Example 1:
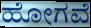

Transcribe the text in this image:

ಹೋಗವೆ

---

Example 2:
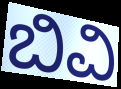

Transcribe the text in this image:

ಬಿವಿ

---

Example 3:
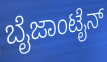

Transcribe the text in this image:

ಬೈಜಾಂಟೈನ್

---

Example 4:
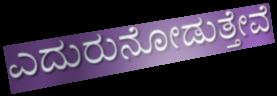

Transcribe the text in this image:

ಎದುರುನೋಡುತ್ತೇವೆ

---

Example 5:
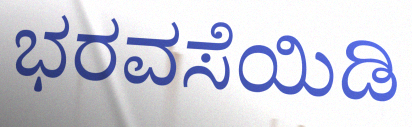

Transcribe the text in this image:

ಭರವಸೆಯಿಡಿ